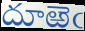
దూఱెఁ